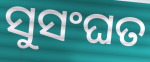
ସୁସଂଘତ